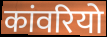
कांवरियो